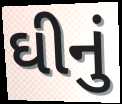
ઘીનું